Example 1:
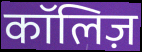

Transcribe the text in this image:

कॉलिज़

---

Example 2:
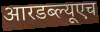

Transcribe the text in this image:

आरडब्ल्यूएच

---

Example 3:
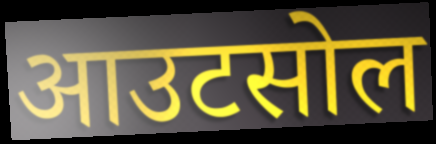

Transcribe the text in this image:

आउटसोल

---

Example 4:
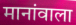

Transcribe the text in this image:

मानांवाला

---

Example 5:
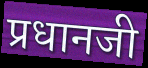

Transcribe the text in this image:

प्रधानजी